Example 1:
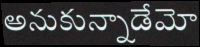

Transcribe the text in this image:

అనుకున్నాడేమో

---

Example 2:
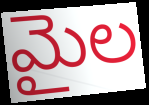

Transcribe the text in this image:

మైల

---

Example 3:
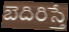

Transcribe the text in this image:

బెదిరిస్తే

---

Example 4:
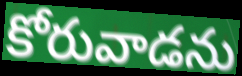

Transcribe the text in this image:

కోరువాడను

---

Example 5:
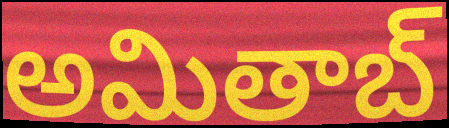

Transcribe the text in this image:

అమితాబ్